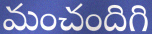
మంచందిగి